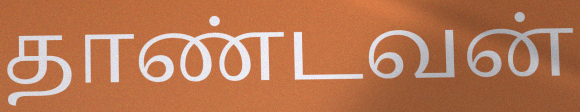
தாண்டவன்